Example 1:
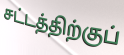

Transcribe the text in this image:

சட்டத்திற்குப்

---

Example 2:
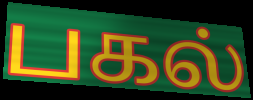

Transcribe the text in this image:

பகல்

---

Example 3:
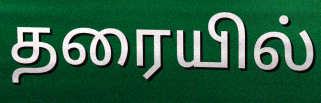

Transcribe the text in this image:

தரையில்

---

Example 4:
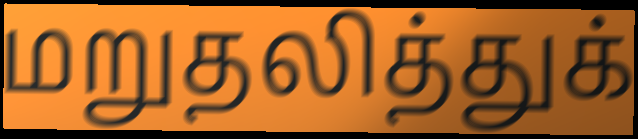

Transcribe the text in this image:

மறுதலித்துக்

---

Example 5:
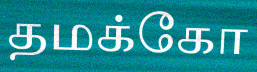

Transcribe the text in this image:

தமக்கோ